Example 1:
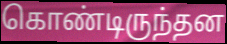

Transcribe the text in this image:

கொண்டிருந்தன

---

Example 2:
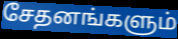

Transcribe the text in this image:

சேதனங்களும்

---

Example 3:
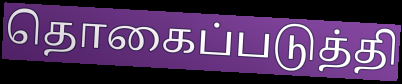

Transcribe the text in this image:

தொகைப்படுத்தி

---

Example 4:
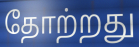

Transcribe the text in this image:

தோற்றது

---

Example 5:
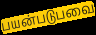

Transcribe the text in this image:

பயன்படுபவை